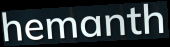
hemanth